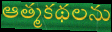
ఆత్మకథలను